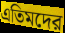
এতিমদের